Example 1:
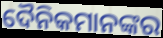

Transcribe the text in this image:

ଦୈନିକମାନଙ୍କର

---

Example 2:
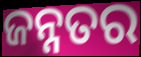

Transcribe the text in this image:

ଜନ୍ନତର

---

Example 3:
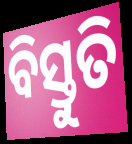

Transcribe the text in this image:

ବିସ୍ତୁତି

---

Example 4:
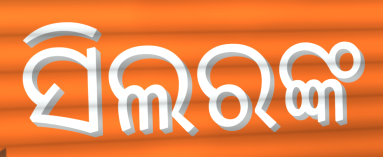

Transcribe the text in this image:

ସିଲରଙ୍କ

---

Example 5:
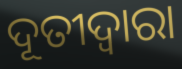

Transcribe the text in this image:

ଦୂତୀଦ୍ୱାରା